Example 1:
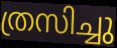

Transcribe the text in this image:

ത്രസിച്ചു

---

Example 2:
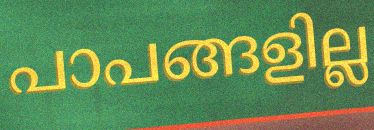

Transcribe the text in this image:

പാപങ്ങളില്ല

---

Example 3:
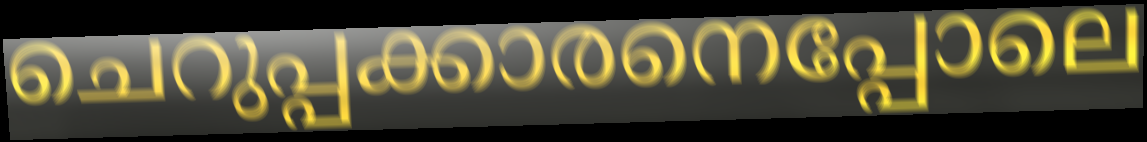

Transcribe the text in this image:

ചെറുപ്പക്കാരനെപ്പോലെ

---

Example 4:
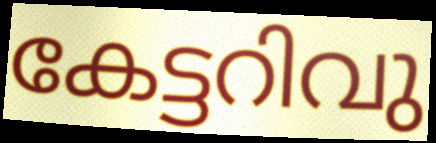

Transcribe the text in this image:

കേട്ടറിവു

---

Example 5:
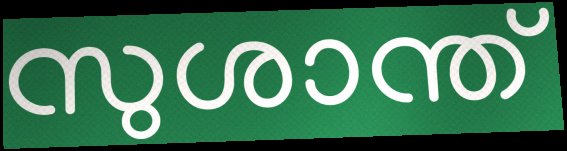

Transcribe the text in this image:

സുശാന്ത്